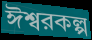
ঈশ্বরকল্প